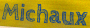
Michaux